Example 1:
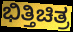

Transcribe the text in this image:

ಭಿತ್ತಿಚಿತ್ರ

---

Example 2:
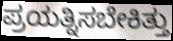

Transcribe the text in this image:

ಪ್ರಯತ್ನಿಸಬೇಕಿತ್ತು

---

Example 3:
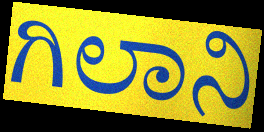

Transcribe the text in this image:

ಗಿಲಾನಿ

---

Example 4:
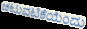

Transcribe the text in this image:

ಚಟುವಟಿಕೆಯೆಂದು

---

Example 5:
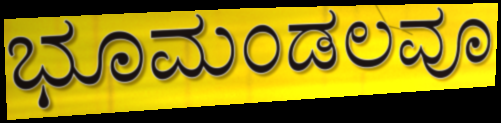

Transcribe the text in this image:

ಭೂಮಂಡಲವೂ